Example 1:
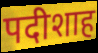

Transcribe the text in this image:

पदीशाह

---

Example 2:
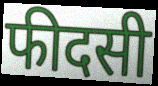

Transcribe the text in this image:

फीदसी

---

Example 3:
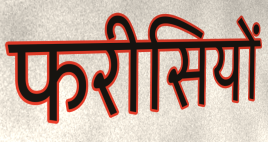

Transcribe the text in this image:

फरीसियों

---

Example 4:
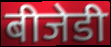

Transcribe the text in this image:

बीजेडी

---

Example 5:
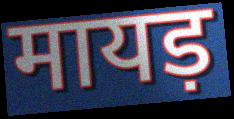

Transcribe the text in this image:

मायड़